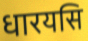
धारयसि